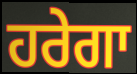
ਹਰੇਗਾ